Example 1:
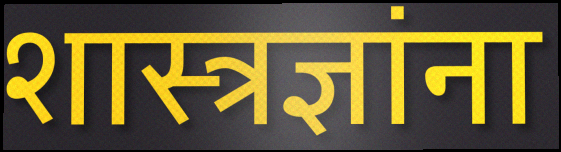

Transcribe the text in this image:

शास्त्रज्ञांना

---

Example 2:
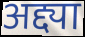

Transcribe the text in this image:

अद्द्या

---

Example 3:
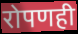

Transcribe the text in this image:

रोपणही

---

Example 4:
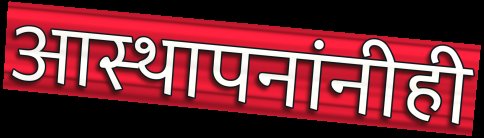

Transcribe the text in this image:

आस्थापनांनीही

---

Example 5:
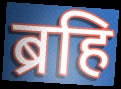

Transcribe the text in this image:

ब्रहि